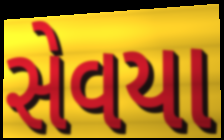
સેવયા